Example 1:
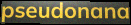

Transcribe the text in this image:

pseudonana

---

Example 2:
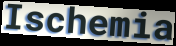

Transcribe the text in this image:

Ischemia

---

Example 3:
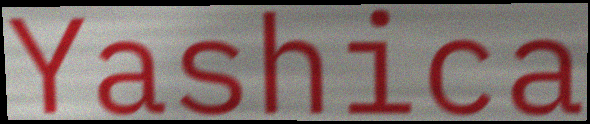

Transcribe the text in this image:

Yashica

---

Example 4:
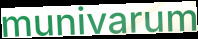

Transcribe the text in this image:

munivarum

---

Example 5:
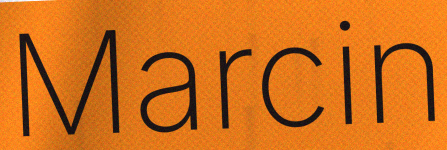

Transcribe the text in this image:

Marcin